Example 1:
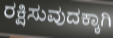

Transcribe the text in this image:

ರಕ್ಷಿಸುವುದಕ್ಕಾಗಿ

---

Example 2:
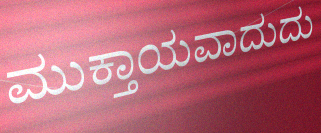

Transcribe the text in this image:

ಮುಕ್ತಾಯವಾದುದು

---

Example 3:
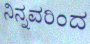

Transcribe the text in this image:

ನಿನ್ನವರಿಂದ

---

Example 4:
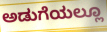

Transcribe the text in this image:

ಅಡುಗೆಯಲ್ಲೂ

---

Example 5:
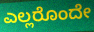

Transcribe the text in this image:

ಎಲ್ಲರೊಂದೇ